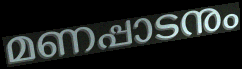
മണപ്പാടനും